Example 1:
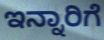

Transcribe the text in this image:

ಇನ್ನಾರಿಗೆ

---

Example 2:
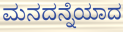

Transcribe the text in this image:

ಮನದನ್ನೆಯಾದ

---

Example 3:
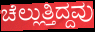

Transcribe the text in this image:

ಚೆಲ್ಲುತ್ತಿದ್ದವು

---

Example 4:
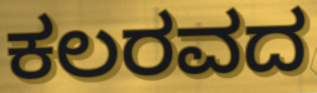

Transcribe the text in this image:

ಕಲರವದ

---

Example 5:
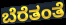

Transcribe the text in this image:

ಬೆರೆತಂತೆ